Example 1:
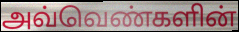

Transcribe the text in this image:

அவ்வெண்களின்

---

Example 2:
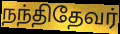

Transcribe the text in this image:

நந்திதேவர்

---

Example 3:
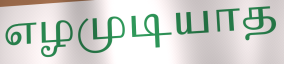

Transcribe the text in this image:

எழமுடியாத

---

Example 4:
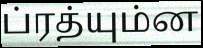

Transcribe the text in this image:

ப்ரத்யும்ன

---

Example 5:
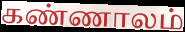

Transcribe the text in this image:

கண்ணாலம்